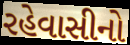
રહેવાસીનો